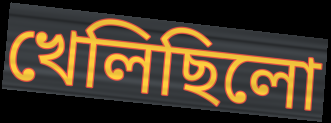
খেলিছিলো